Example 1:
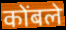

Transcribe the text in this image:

कोंबले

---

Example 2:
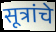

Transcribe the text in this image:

सूत्रांचे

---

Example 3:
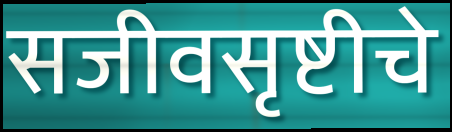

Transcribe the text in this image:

सजीवसृष्टीचे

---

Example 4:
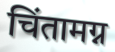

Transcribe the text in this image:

चिंतामग्न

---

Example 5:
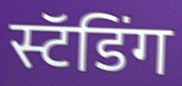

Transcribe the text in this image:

स्टॅडिंग